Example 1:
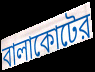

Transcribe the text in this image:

বালাকোটের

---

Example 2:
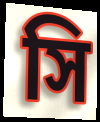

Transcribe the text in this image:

সি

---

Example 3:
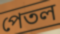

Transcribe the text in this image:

পেতল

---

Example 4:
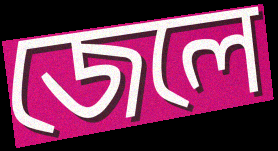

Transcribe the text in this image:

জেলে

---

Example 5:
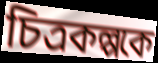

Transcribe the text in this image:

চিত্রকল্পকে